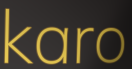
karo